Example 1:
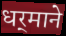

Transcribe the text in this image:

धर्माने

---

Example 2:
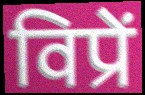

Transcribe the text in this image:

विप्रें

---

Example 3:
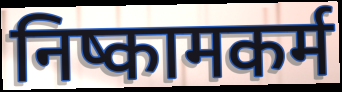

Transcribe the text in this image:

निष्कामकर्म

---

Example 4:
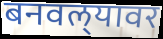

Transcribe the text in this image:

बनवल्यावर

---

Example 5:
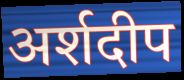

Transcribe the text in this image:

अर्शदीप